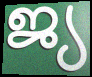
ജ്യ